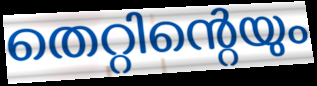
തെറ്റിന്റെയും